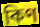
কিণ